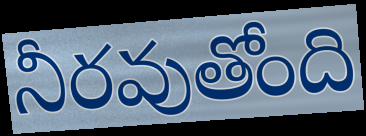
నీరవుతోంది